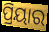
ପ୍ରିୟାର